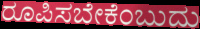
ರೂಪಿಸಬೇಕೆಂಬುದು